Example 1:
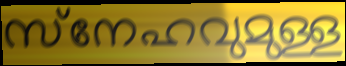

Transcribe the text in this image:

സ്‌നേഹവുമുള്ള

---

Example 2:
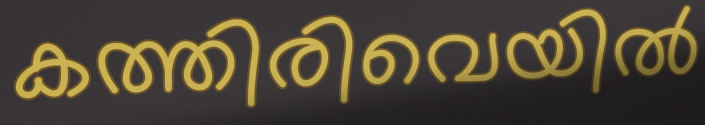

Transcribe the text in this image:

കത്തിരിവെയിൽ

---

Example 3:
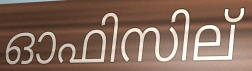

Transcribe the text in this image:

ഓഫിസില്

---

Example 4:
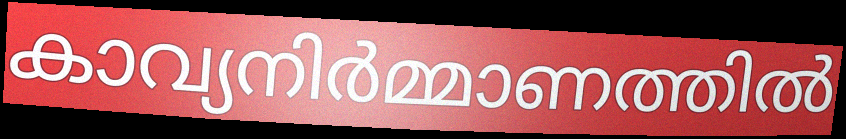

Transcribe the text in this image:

കാവ്യനിർമ്മാണത്തിൽ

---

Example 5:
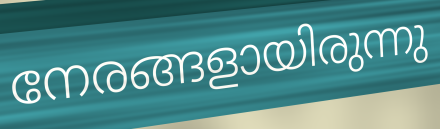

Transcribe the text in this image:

നേരങ്ങളായിരുന്നു